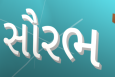
સૌરભ